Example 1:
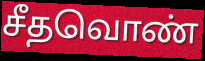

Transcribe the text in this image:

சீதவொண்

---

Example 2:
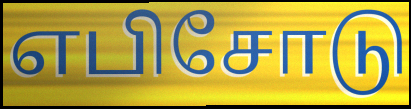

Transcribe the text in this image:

எபிசோடு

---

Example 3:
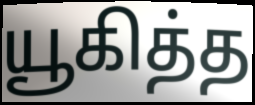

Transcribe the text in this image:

யூகித்த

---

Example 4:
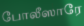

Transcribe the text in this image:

போலீஸாரே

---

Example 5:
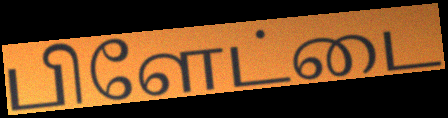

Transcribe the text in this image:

பிளேட்டை